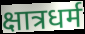
क्षात्रधर्म